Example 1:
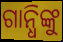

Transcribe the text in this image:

ଗାନ୍ଧିଙ୍କୁ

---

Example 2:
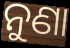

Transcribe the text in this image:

ନୁଣା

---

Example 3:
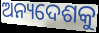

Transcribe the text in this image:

ଅନ୍ୟଦେଶକୁ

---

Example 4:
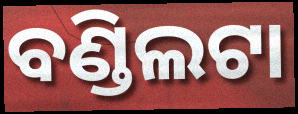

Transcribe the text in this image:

ବଣ୍ଡିଲଟା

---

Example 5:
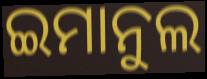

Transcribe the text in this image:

ଇମାନୁଲ